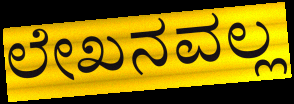
ಲೇಖನವಲ್ಲ